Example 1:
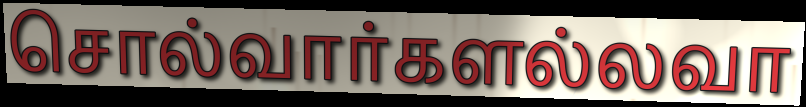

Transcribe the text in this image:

சொல்வார்களல்லவா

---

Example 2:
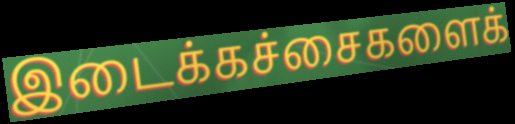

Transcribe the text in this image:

இடைக்கச்சைகளைக்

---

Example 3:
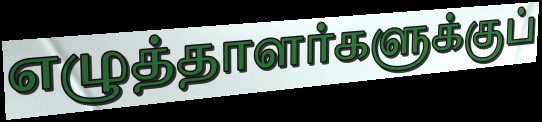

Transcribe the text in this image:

எழுத்தாளர்களுக்குப்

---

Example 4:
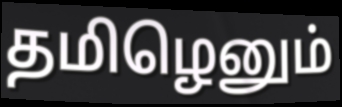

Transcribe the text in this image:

தமிழெனும்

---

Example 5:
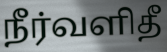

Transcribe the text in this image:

நீர்வளிதீ